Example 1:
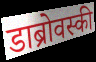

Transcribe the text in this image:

डाब्रोवस्की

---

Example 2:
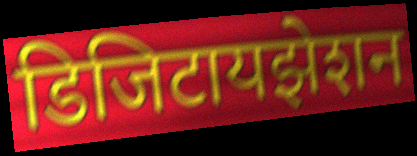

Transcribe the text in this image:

डिजिटायझेशन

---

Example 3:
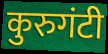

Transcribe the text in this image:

कुरुगंटी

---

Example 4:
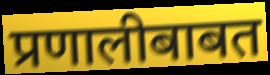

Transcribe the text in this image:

प्रणालीबाबत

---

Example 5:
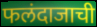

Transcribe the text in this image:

फलंदाजाची